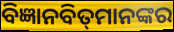
ବିଜ୍ଞାନବିତ୍‌ମାନଙ୍କର